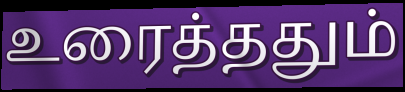
உரைத்ததும்